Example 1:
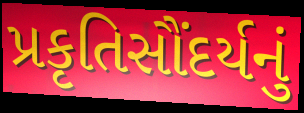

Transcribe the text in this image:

પ્રકૃતિસૌંદર્યનું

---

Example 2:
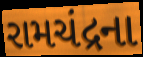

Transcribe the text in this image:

રામચંદ્રના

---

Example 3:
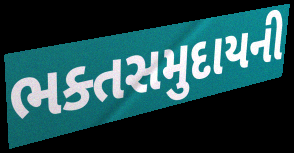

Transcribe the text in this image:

ભક્તસમુદાયની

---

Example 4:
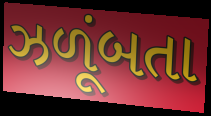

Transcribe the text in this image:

ઝળૂંબતા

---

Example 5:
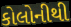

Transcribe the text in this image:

કોલોનીથી